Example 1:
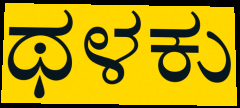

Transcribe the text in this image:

ಥಳಕು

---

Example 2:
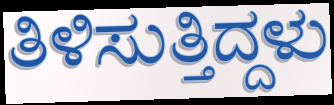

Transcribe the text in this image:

ತಿಳಿಸುತ್ತಿದ್ದಳು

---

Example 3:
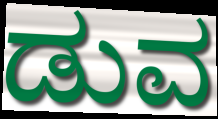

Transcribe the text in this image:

ಡುವ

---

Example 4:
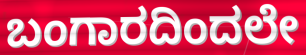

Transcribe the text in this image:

ಬಂಗಾರದಿಂದಲೇ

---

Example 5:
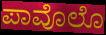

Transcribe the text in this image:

ಪಾವೊಲೊ